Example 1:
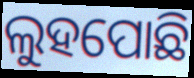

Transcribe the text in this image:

ଲୁହପୋଛି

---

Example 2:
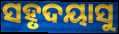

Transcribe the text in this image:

ସହୃଦୟାସୁ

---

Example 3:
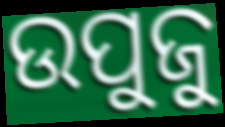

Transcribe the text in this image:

ଉପୁଜୁ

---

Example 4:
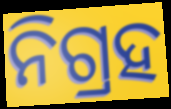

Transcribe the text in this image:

ନିଗ୍ରହ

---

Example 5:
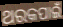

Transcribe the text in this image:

ଥରକପାଇଁ